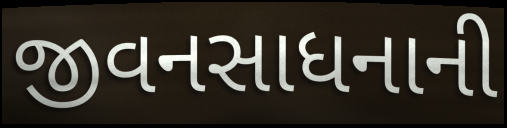
જીવનસાધનાની